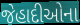
જેહાદીઓના